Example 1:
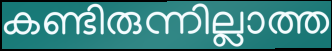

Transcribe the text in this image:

കണ്ടിരുന്നില്ലാത്ത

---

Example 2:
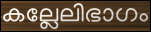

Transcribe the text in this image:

കല്ലേലിഭാഗം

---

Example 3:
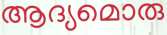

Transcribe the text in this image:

ആദ്യമൊരു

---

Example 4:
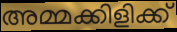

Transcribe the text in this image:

അമ്മക്കിളിക്ക്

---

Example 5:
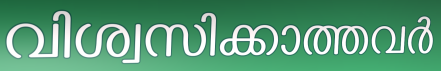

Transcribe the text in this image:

വിശ്വസിക്കാത്തവർ